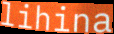
lihina